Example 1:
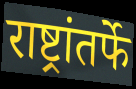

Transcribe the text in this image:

राष्ट्रांतर्फे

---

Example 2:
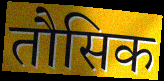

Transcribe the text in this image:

तौसिक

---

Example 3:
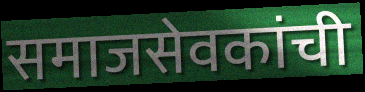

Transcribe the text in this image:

समाजसेवकांची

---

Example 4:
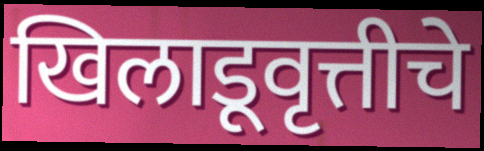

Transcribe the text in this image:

खिलाडूवृत्तीचे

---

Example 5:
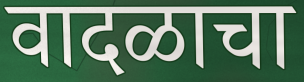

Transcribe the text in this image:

वादळाचा